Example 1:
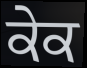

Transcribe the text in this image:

ਕੇਕ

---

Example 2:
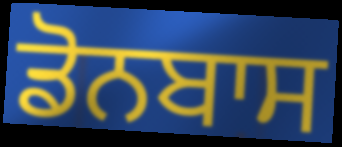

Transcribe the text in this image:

ਡੋਨਬਾਸ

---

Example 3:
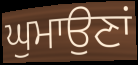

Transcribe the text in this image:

ਘੁਮਾਉਣਾਂ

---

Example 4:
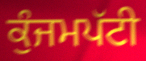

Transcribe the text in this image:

ਕੁੰਜਮਪੱਟੀ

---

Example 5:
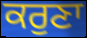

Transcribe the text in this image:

ਕਰੁਣਾ